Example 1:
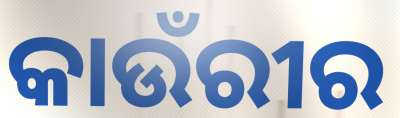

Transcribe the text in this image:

କାଉଁରୀର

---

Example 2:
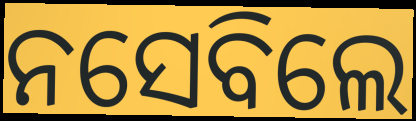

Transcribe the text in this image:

ନସେବିଲେ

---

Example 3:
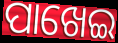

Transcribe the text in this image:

ପାଖେଇ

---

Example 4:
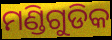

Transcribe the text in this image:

ମଣ୍ଡିଗୁଡିକ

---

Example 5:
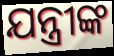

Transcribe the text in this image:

ଯନ୍ତ୍ରୀଙ୍କ